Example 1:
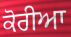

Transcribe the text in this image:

ਕੋਰੀਆ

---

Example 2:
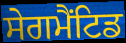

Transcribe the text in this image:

ਸੇਗਮੈਂਟਿਡ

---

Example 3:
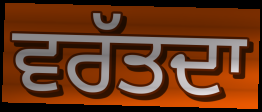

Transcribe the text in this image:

ਵਰੱਤਦਾ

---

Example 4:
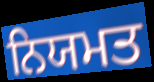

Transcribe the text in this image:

ਨਿਯਮਤ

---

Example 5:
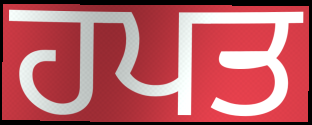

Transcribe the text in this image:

ਹਪਤ